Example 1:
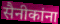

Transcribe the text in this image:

सैनीकांना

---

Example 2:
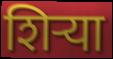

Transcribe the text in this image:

शिर्‍या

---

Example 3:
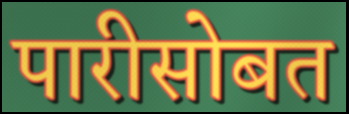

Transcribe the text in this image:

पारीसोबत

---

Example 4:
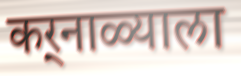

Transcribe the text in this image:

कर्नाळ्याला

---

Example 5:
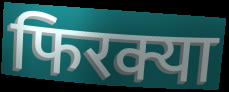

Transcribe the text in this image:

फिरक्या